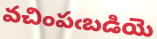
వచింపఁబడియె